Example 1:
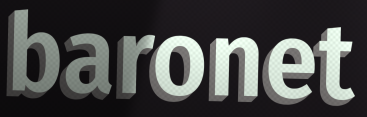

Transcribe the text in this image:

baronet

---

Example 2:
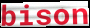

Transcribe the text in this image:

bison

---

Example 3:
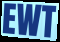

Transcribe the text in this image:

EWT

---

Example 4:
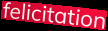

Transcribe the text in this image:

felicitation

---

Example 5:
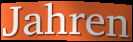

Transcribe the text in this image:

Jahren